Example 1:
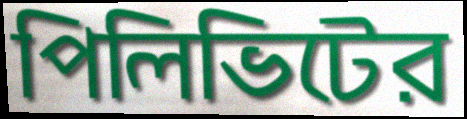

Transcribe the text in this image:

পিলিভিটের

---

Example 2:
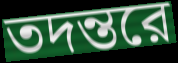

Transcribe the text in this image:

তদন্তরে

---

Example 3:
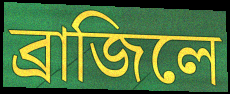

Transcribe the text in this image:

ব্রাজিলে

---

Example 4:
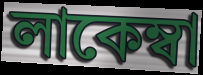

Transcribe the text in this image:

লাকেম্বা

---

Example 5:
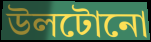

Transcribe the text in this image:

উলটোনো